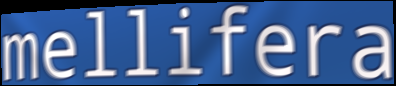
mellifera